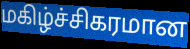
மகிழ்ச்சிகரமான